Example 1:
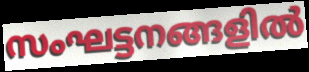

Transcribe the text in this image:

സംഘട്ടനങ്ങളിൽ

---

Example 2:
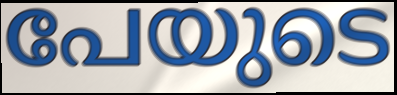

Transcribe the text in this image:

പേയുടെ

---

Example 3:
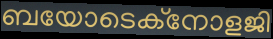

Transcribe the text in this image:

ബയോടെക്നോളജി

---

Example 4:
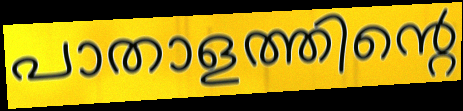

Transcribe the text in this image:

പാതാളത്തിന്റെ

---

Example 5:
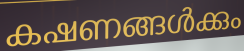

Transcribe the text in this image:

കഷണങ്ങൾക്കും